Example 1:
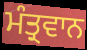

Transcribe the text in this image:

ਮੰਤ੍ਰਵਾਨ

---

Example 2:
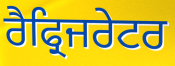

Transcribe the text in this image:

ਰੈਫ੍ਰਿਜਰੇਟਰ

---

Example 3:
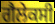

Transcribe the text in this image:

ਗੈਲੇਕਸੀ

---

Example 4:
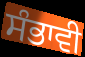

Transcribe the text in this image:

ਸੰਭਾਵੀ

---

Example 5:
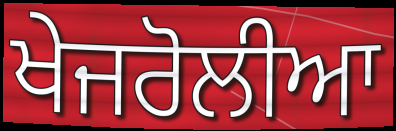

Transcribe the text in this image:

ਖੇਜਰੋਲੀਆ